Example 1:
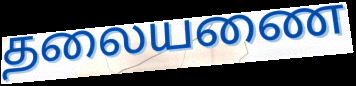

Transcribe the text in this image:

தலையணை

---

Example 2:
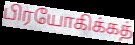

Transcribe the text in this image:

பிரயோகிக்கத்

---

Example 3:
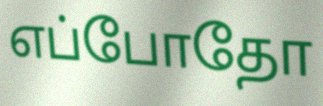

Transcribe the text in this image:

எப்போதோ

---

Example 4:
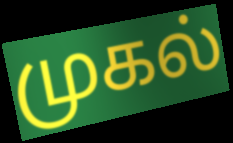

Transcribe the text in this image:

முகல்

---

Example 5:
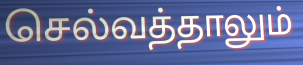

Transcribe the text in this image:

செல்வத்தாலும்